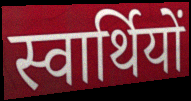
स्वार्थियों